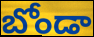
బోండా